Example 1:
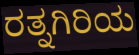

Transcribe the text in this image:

ರತ್ನಗಿರಿಯ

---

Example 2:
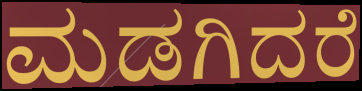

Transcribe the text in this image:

ಮಡಗಿದರೆ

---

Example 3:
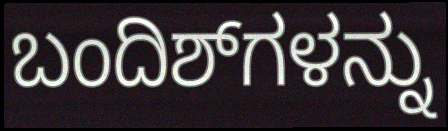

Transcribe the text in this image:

ಬಂದಿಶ್‌ಗಳನ್ನು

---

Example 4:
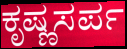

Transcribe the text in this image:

ಕೃಷ್ಣಸರ್ಪ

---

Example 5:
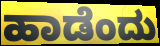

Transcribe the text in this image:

ಹಾಡೆಂದು